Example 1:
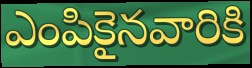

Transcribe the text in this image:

ఎంపికైనవారికి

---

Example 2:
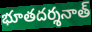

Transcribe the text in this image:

భూతదర్శనాత్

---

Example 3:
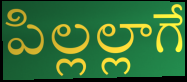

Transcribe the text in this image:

పిల్లల్లాగే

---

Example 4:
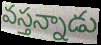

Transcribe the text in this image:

వస్తన్నాడు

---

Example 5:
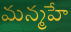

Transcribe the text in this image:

మన్మహే